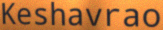
Keshavrao